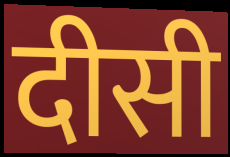
दीसी